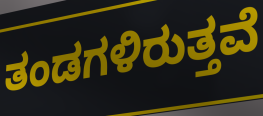
ತಂಡಗಳಿರುತ್ತವೆ